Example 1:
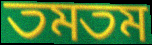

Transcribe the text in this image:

তমতম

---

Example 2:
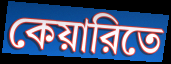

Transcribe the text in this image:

কেয়ারিতে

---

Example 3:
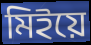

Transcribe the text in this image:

মিইয়ে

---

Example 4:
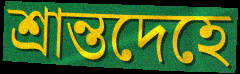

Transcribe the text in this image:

শ্রান্তদেহে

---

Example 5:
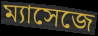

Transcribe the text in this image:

ম্যাসেজে